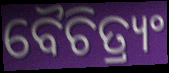
ବୈଚିତ୍ର୍ୟଂ